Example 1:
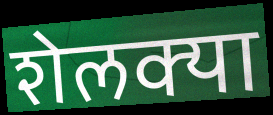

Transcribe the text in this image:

शेलक्या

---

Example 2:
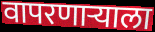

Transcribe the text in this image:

वापरणार्‍याला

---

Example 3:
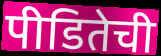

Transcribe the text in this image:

पीडितेची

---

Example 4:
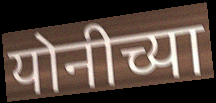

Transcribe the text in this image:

योनीच्या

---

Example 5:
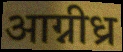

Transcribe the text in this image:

आग्नीध्र